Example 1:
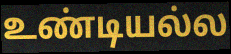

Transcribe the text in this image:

உண்டியல்ல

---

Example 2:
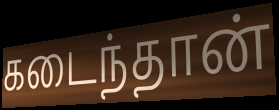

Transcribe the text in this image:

கடைந்தான்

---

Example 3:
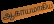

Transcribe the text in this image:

ஆகாயமாகிய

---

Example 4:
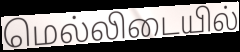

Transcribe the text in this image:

மெல்லிடையில்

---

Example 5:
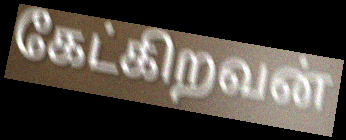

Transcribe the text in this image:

கேட்கிறவன்